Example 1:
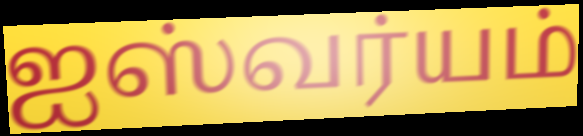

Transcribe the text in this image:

ஐஸ்வர்யம்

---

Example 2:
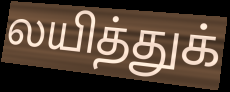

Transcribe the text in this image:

லயித்துக்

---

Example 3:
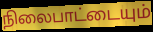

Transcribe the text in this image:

நிலைபாட்டையும்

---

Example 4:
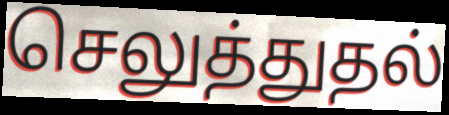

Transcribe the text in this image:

செலுத்துதல்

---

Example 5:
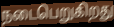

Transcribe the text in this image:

நடைபெறுகிறது